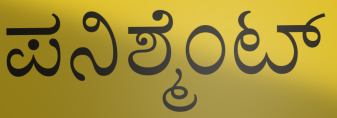
ಪನಿಶ್ಮೆಂಟ್